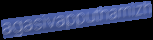
agasivapputhamizh